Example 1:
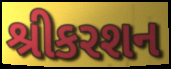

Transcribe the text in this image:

શ્રીકરશન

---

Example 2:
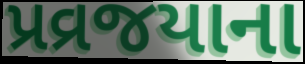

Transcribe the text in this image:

પ્રવ્રજયાના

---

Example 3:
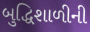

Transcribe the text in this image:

બુદ્ધિશાળીની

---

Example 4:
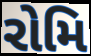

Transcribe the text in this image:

રોમિ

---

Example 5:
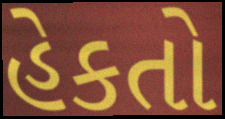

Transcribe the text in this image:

હેકતો